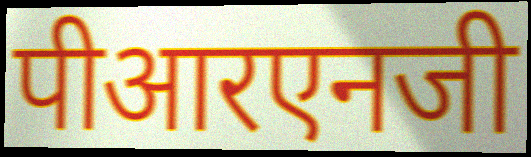
पीआरएनजी